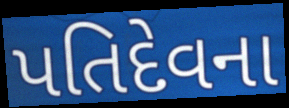
પતિદેવના